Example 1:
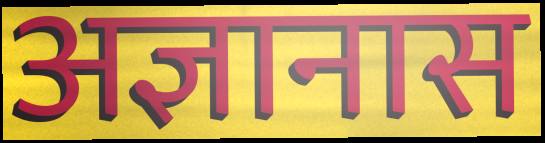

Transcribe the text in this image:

अज्ञानास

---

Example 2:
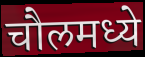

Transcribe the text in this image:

चौलमध्ये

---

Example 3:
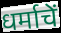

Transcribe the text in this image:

धर्माचें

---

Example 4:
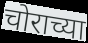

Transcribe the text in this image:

चोराच्या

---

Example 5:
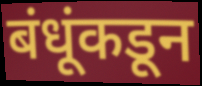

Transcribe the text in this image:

बंधूंकडून